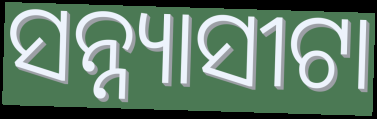
ସନ୍ନ୍ୟାସୀଟା